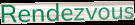
Rendezvous